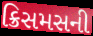
ક્રિસમસની